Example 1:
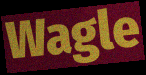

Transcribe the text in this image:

Wagle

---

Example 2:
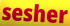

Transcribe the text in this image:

sesher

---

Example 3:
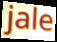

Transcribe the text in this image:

jale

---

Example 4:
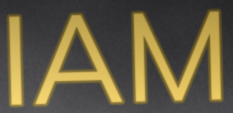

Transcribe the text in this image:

IAM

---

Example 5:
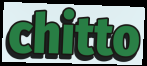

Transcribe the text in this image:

chitto